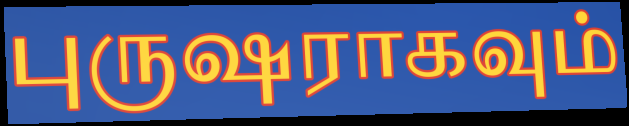
புருஷராகவும்